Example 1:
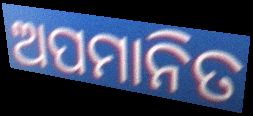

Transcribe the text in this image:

ଅପମାନିତ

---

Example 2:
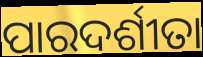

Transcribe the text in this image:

ପାରଦର୍ଶୀତା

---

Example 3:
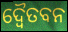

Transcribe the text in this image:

ଦ୍ୱୈତବନ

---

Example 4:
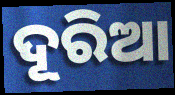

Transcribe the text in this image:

ଦୂରିଆ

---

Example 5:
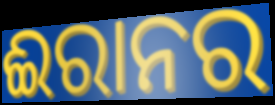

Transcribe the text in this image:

ଈରାନର